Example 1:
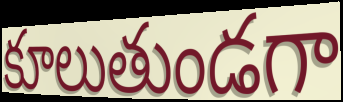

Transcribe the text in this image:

కూలుతుండగా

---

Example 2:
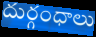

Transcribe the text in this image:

దుర్గంధాలు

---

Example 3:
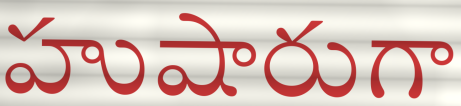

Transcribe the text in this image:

హుషారుగా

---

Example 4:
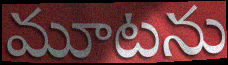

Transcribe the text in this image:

మూటను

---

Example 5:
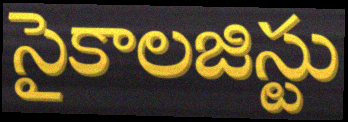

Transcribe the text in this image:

సైకాలజిస్టు